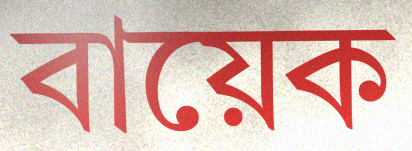
বায়েক